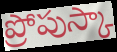
ప్రోపుస్కా